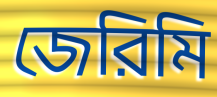
জেরিমি